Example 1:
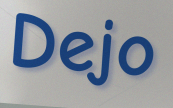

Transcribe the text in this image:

Dejo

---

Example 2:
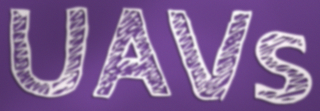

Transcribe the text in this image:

UAVs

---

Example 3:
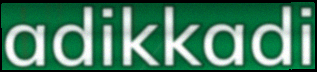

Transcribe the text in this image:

adikkadi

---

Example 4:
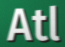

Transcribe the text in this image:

Atl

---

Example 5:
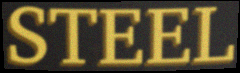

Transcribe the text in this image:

STEEL